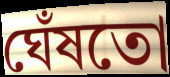
ঘেঁষতো